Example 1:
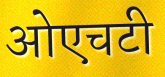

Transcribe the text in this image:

ओएचटी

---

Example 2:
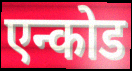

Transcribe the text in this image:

एन्कोड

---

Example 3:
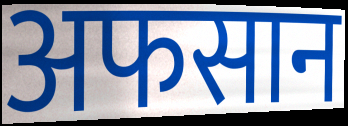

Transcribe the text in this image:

अफसान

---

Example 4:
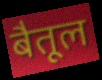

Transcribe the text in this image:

बैतूल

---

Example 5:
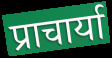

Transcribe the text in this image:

प्राचार्या